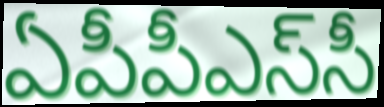
ఏపీపీఎస్‌సీ